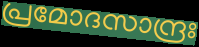
പ്രമോദസാന്ദ്രഃ